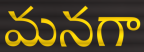
మనగా